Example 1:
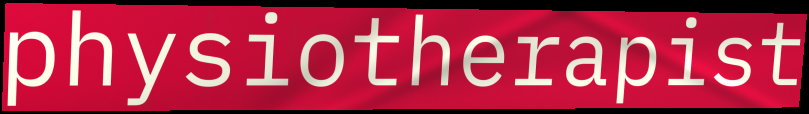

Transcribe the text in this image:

physiotherapist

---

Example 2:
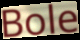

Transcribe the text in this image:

Bole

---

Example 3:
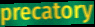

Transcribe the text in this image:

precatory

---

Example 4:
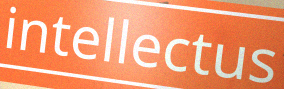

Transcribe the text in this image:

intellectus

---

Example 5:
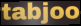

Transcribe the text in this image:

tabjoo